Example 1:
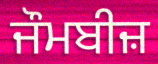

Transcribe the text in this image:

ਜੌਮਬੀਜ਼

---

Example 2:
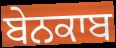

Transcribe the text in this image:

ਬੇਨਕਾਬ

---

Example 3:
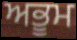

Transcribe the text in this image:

ਅਭੂਮ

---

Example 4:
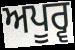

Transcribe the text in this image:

ਅਪੂਰ੍ਵ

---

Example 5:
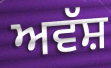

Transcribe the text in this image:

ਅਵੱਸ਼